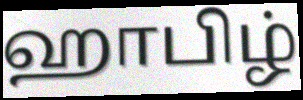
ஹாபிழ்